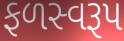
ફળસ્વરૂપ